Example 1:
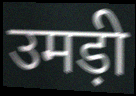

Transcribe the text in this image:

उमड़ी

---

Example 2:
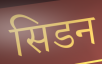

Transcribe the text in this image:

सिडन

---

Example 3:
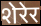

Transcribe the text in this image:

शेरेर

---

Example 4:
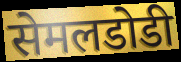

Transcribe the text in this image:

सेमलडोडी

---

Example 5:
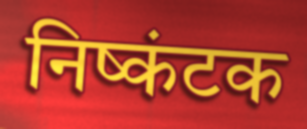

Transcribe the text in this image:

निष्कंटक